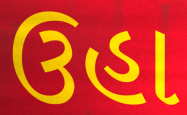
ઉહા